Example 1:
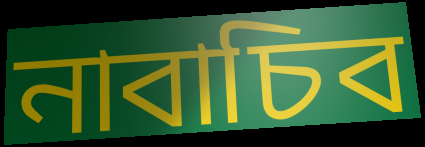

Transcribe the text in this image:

নাবাচিব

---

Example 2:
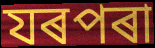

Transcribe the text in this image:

যৰপৰা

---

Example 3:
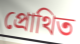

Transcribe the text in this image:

প্ৰোথিত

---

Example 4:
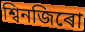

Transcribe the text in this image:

শ্বিনজিৰো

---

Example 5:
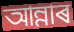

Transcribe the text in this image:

আন্নাৰ